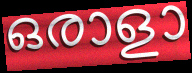
ഒരാളാ